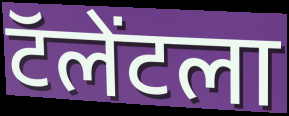
टॅलेंटला